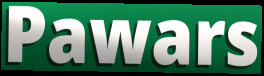
Pawars